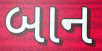
બાન